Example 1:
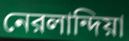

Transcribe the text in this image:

নেরলান্দিয়া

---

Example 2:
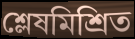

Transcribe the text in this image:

শ্লেষমিশ্রিত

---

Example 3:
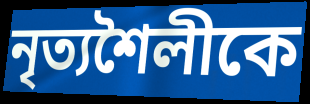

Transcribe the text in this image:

নৃত্যশৈলীকে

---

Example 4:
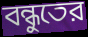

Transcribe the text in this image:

বন্ধুতের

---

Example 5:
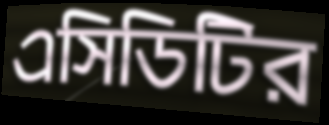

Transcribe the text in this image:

এসিডিটির